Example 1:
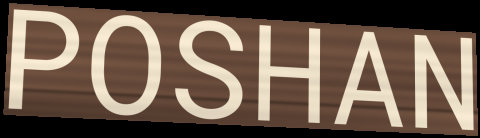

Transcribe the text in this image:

POSHAN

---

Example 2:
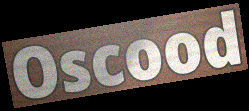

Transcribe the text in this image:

Oscood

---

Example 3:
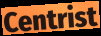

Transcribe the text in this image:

Centrist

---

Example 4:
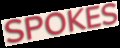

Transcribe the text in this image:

SPOKES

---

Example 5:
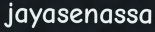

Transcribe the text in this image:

jayasenassa